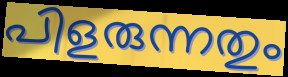
പിളരുന്നതും